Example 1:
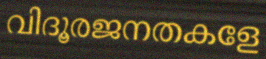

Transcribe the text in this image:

വിദൂരജനതകളേ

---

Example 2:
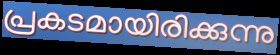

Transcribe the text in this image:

പ്രകടമായിരിക്കുന്നു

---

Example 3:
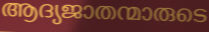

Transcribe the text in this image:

ആദ്യജാതന്മാരുടെ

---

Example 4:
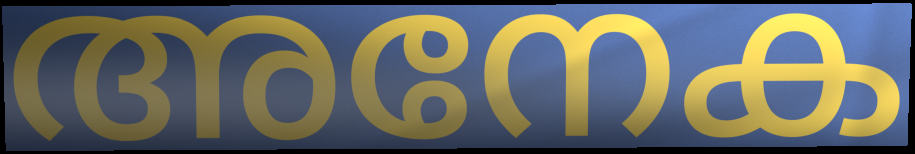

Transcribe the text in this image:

അനേക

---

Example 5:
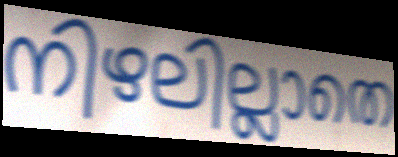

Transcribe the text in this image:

നിഴലില്ലാതെ